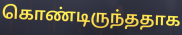
கொண்டிருந்ததாக